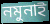
নমুনাই